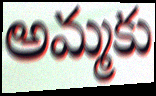
అమ్మకు